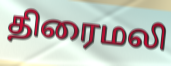
திரைமலி